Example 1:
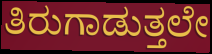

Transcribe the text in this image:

ತಿರುಗಾಡುತ್ತಲೇ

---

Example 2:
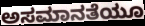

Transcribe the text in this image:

ಅಸಮಾನತೆಯೂ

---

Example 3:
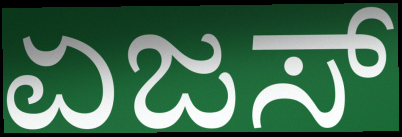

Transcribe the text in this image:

ಏಜಸ್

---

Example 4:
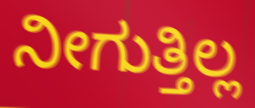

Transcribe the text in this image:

ನೀಗುತ್ತಿಲ್ಲ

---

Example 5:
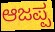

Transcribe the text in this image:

ಆಜಪ್ಪ